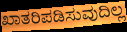
ಖಾತರಿಪಡಿಸುವುದಿಲ್ಲ